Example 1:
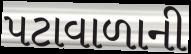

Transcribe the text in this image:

પટાવાળાની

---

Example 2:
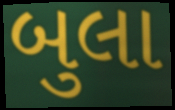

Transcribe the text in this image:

બુલા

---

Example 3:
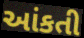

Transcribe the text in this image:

આંકતી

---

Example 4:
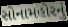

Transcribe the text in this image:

સોનામહોરનું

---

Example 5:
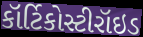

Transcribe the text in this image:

કૉર્ટિકોસ્ટીરૉઇડ